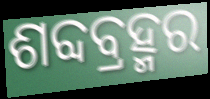
ଶବ୍ଦବ୍ରହ୍ମର